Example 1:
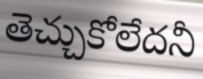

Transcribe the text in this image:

తెచ్చుకోలేదనీ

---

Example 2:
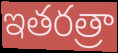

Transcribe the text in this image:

ఇతరత్రా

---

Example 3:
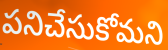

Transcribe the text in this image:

పనిచేసుకోమని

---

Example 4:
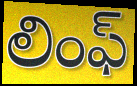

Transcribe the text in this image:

లింఫ్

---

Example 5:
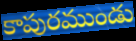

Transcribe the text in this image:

కాపురముండు